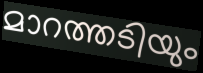
മാറത്തടിയും